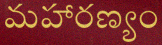
మహారణ్యం